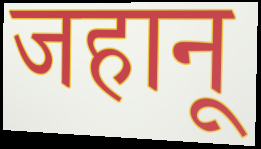
जहानू